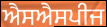
ਐਸਐਸਪੀਜ